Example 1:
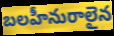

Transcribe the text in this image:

బలహీనురాలైన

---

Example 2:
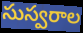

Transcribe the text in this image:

సుస్వరాల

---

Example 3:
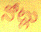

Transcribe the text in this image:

నోట్లు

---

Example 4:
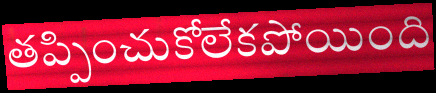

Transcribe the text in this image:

తప్పించుకోలేకపోయింది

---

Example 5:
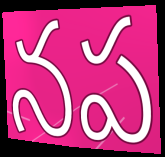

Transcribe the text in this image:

నప